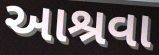
આશ્રવા